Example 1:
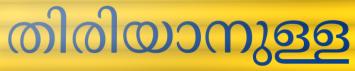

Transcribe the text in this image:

തിരിയാനുള്ള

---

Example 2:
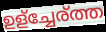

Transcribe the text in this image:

ഉള്ച്ചേര്ത്ത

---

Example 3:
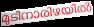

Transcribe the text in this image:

മുടിനാരിഴയിൽ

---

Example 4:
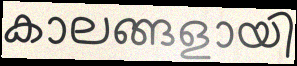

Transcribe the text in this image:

കാലങ്ങളായി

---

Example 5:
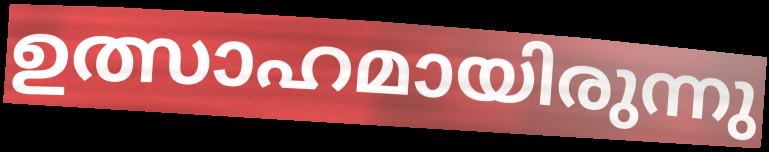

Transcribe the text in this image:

ഉത്സാഹമായിരുന്നു